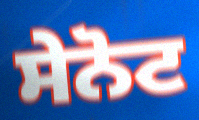
ਸੇਨੋਟ